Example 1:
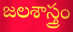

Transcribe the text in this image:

జలశాస్త్రం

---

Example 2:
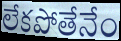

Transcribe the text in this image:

లేకపోతేనేం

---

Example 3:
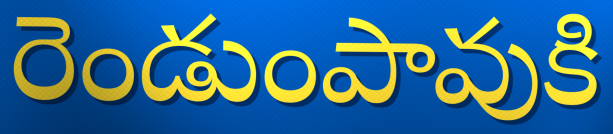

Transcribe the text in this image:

రెండుంపావుకి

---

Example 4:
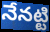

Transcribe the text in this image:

నేనట్టి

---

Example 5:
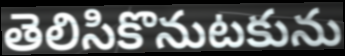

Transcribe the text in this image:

తెలిసికొనుటకును